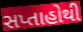
સપ્તાહોથી